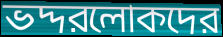
ভদ্দরলোকদের